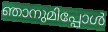
ഞാനുമിപ്പോൾ